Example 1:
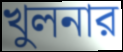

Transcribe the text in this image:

খুলনার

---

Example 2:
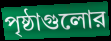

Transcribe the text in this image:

পৃষ্ঠাগুলোর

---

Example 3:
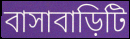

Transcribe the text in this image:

বাসাবাড়িটি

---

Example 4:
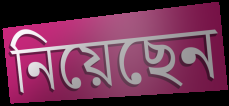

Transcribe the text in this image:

নিয়েছেন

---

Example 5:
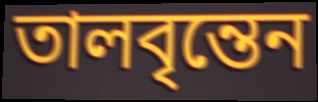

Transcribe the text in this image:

তালবৃন্তেন